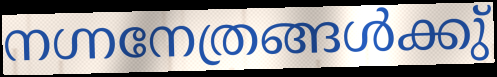
നഗ്നനേത്രങ്ങൾക്കു്